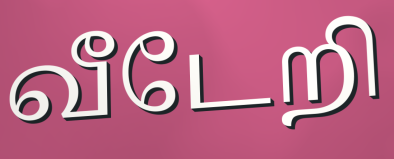
வீடேறி